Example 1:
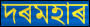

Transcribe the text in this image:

দৰমহাৰ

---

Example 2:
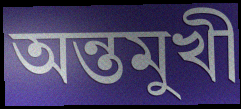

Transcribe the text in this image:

অন্তমুখী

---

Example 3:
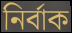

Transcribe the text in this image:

নিৰ্বাক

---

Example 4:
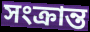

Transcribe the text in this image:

সংক্ৰান্ত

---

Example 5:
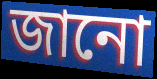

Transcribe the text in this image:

জানো